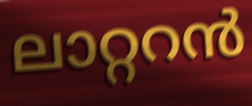
ലാറ്ററൻ